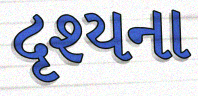
દૃશ્યના